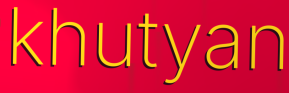
khutyan